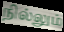
நில்லும்